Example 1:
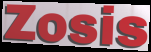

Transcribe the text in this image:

Zosis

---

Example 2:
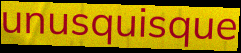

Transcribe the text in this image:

unusquisque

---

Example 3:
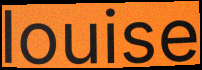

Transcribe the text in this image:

louise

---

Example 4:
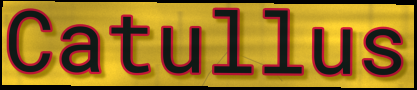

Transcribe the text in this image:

Catullus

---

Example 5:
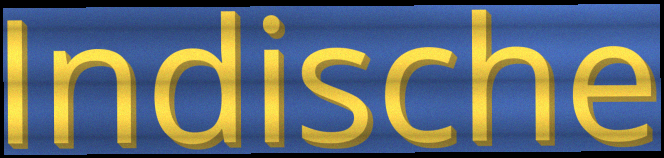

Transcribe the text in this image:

Indische